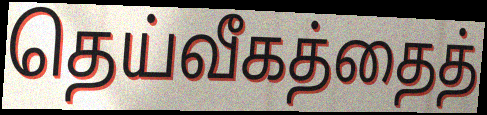
தெய்வீகத்தைத்